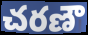
చరణౌ